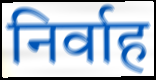
निर्वाह